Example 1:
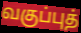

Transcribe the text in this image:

வகுப்புத்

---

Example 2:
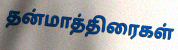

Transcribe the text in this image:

தன்மாத்திரைகள்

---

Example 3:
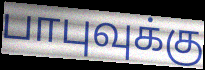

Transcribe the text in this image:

பாபுவுக்கு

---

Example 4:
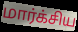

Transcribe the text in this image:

மார்க்சிய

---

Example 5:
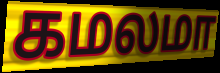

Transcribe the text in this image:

கமலமா